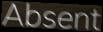
Absent